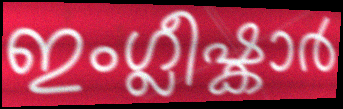
ഇംഗ്ലീഷ്കാർ